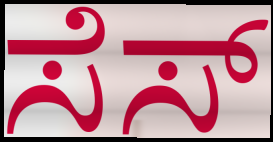
ಸೆಸ್